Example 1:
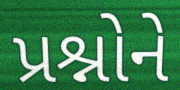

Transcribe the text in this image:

પ્રશ્નોને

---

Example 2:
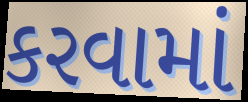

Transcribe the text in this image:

કરવામાં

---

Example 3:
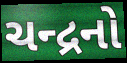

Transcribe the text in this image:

ચન્દ્રનો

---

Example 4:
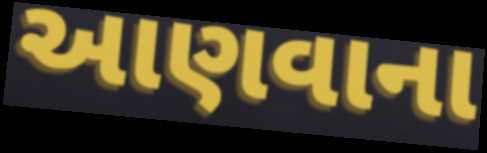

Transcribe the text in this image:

આણવાના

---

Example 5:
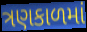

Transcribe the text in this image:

ત્રણકાળમાં